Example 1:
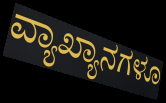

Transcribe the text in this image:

ವ್ಯಾಖ್ಯಾನಗಳೂ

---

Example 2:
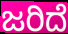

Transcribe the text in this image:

ಜರಿದೆ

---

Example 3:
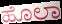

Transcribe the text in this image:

ಹೊಲಾ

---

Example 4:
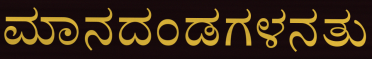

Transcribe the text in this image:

ಮಾನದಂಡಗಳನತು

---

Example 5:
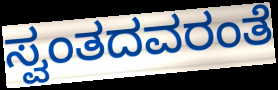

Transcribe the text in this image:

ಸ್ವಂತದವರಂತೆ